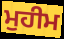
ਮੁਹੀਮ